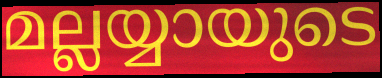
മല്ലയ്യായുടെ